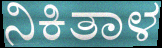
ನಿಕಿತಾಳ